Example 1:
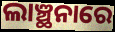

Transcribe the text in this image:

ଲାଞ୍ଛନାରେ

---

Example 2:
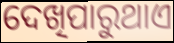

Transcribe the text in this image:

ଦେଖିପାରୁଥାଏ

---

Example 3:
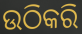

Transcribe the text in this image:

ଉଠିକରି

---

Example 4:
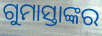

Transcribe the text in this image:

ଗୁମାସ୍ତାଙ୍କର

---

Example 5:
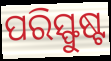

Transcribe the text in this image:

ପରିସ୍ଫୁଷ୍ଟ